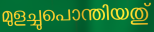
മുളച്ചുപൊന്തിയതു്